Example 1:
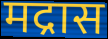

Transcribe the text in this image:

मद्रास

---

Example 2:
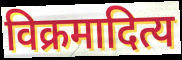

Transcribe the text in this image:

विक्रमादित्य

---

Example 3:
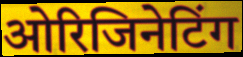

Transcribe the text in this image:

ओरिजिनेटिंग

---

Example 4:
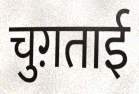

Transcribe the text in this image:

चुग़ताई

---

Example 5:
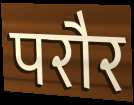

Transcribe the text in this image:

परौर